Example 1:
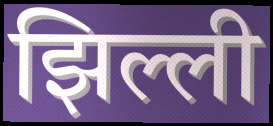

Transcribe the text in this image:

झिल्ली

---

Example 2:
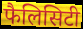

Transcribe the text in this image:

फैलिसिटी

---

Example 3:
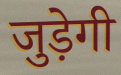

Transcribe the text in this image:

जुड़ेगी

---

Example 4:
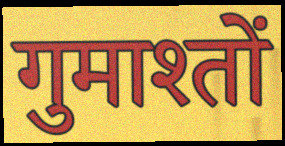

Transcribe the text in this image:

गुमाश्तों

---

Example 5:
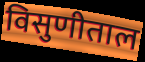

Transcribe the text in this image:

विसुणीताल